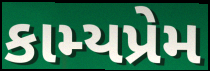
કામ્યપ્રેમ